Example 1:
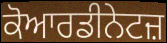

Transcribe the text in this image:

ਕੋਆਰਡੀਨੇਟਜ਼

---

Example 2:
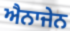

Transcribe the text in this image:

ਐਨਾਜੇਨ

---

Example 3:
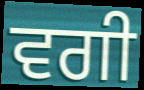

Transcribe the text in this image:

ਵਗੀ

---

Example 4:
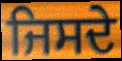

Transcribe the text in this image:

ਜਿਸਦੇ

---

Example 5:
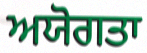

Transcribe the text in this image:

ਅਯੋਗਤਾ